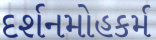
દર્શનમોહકર્મ